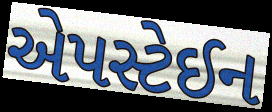
એપસ્ટેઈન